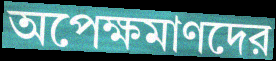
অপেক্ষমাণদের